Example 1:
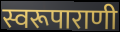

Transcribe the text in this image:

स्वरूपाराणी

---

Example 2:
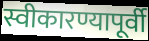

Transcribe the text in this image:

स्वीकारण्यापूर्वी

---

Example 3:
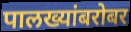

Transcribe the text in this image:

पालख्यांबरोबर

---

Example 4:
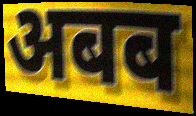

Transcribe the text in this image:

अबब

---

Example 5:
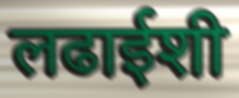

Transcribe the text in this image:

लढाईशी